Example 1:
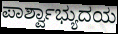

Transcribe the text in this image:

ಪಾರ್ಶ್ವಾಭ್ಯುದಯ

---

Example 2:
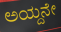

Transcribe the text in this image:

ಅಯ್ದನೇ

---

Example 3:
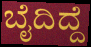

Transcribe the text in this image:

ಬೈದಿದ್ದೆ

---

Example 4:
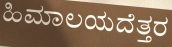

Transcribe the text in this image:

ಹಿಮಾಲಯದೆತ್ತರ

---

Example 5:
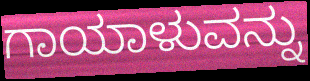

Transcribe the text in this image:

ಗಾಯಾಳುವನ್ನು